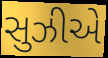
સુઝીએ